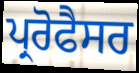
ਪ੍ਰਰੋਫੈਸਰ